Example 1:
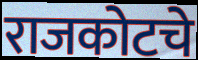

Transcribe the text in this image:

राजकोटचे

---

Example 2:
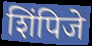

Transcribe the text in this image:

शिंपिजे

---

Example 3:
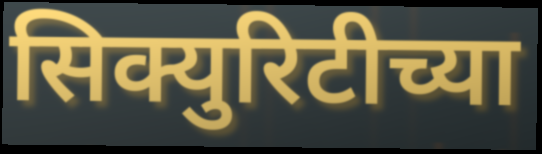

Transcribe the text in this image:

सिक्युरिटीच्या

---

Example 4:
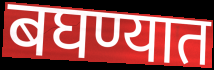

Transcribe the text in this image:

बघण्यात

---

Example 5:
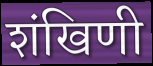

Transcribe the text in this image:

शंखिणी